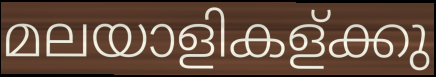
മലയാളികള്ക്കു